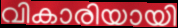
വികാരിയായി